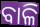
ବାଳି